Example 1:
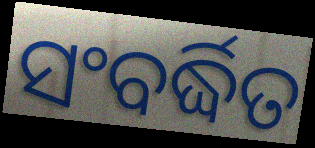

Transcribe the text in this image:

ସଂବର୍ଦ୍ଧିତ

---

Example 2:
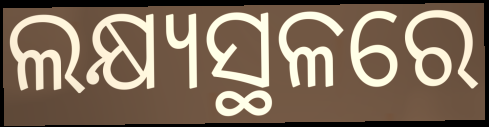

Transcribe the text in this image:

ଲକ୍ଷ୍ୟସ୍ଥଳରେ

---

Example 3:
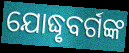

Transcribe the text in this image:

ଯୋଦ୍ଧୃବର୍ଗଙ୍କ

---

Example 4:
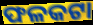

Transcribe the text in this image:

ଫଳକଟା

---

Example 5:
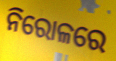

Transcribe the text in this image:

ନିରୋଳରେ